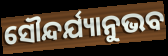
ସୌନ୍ଦର୍ଯ୍ୟାନୁଭବ